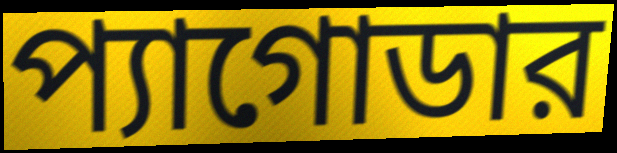
প্যাগোডার